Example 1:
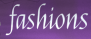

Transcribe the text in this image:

fashions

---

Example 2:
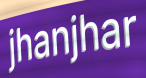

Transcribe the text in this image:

jhanjhar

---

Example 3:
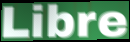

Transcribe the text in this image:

Libre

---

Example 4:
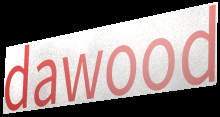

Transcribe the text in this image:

dawood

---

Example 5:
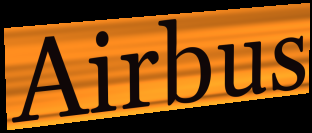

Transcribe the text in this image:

Airbus